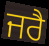
ਜਰੈ